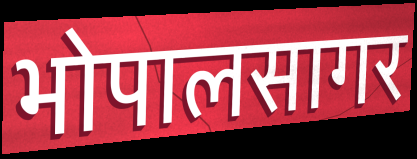
भोपालसागर